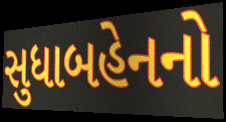
સુધાબહેનનો